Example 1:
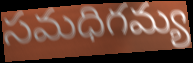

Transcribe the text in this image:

సమధిగమ్య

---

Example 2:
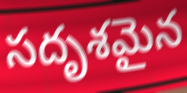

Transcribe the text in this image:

సదృశమైన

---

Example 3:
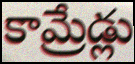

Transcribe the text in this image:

కామ్రేడ్లు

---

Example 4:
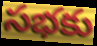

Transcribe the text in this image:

సభకు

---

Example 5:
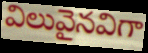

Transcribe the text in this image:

విలువైనవిగా